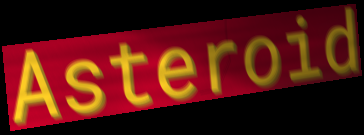
Asteroid